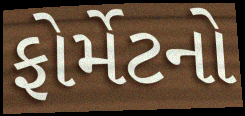
ફોર્મેટનો